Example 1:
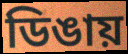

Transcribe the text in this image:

ডিঙায়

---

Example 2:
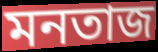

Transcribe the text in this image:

মনতাজ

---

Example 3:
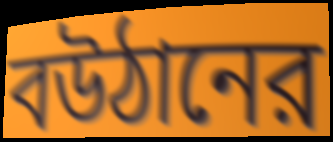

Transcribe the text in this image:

বউঠানের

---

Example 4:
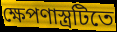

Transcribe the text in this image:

ক্ষেপণাস্ত্রটিতে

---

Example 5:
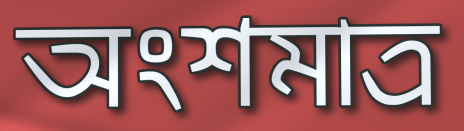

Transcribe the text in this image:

অংশমাত্র